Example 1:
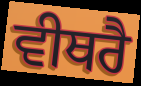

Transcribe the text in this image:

ਵੀਥਰੈ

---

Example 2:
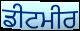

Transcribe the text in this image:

ਡੀਟਮੀਰ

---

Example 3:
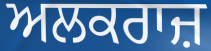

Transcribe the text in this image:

ਅਲਕਰਾਜ਼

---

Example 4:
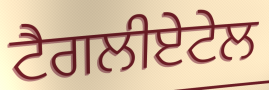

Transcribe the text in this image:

ਟੈਗਲੀਏਟੇਲ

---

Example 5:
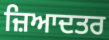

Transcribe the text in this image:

ਜ਼ਿਆਦਤਰ